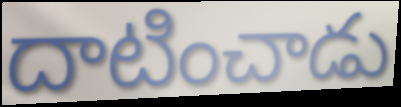
దాటించాడు